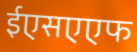
ईएसएएफ